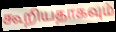
கூறியதாகவும்